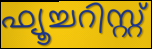
ഫ്യൂച്ചറിസ്റ്റ്